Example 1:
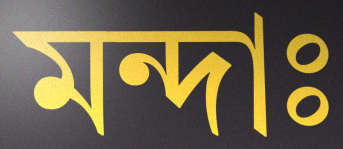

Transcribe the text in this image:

মন্দাঃ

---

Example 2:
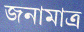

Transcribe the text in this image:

জনামাত্র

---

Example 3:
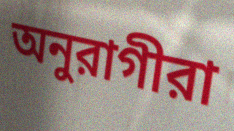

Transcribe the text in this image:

অনুরাগীরা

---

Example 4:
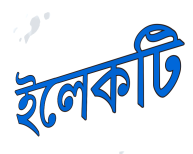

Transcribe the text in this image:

ইলেকটি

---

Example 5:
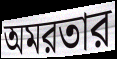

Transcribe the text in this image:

অমরতার